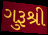
ગુરૂશ્રી